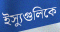
ইস্যুগুলিকে